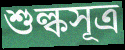
শুল্কসূত্র